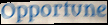
Opportune